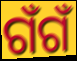
ଗଁଗଁ